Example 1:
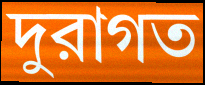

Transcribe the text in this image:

দুরাগত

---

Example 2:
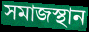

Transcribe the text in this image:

সমাজস্থান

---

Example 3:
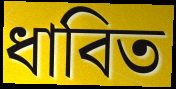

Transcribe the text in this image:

ধাবিত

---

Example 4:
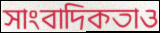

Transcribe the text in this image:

সাংবাদিকতাও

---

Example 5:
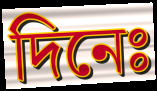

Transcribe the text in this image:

দিনেঃ